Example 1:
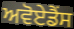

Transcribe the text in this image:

ਅਵੋਏਡੈਂਸ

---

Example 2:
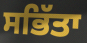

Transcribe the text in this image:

ਸਭਿੱਤਾ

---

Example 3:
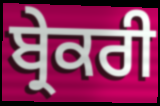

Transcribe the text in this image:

ਬ੍ਰੇਕਰੀ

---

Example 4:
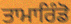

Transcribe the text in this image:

ਤਾਮਾਰਿੰਡੋ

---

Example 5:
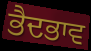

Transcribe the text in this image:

ਭੈਦਭਾਵ